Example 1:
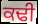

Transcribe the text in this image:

ਕਢੀ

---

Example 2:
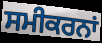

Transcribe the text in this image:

ਸਮੀਕਰਨਾਂ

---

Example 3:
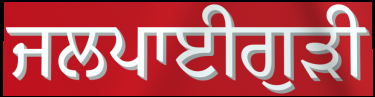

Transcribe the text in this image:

ਜਲਪਾਈਗੁਡ਼ੀ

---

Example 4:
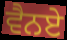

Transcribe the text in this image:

ਵੈਨਏ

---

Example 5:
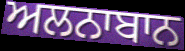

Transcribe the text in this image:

ਅਲਨਾਬਾਨ